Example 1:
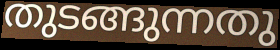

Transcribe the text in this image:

തുടങ്ങുന്നതു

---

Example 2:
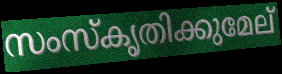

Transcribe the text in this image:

സംസ്കൃതിക്കുമേല്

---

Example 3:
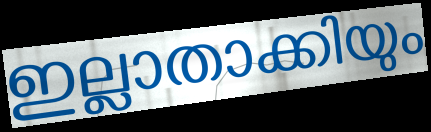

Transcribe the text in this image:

ഇല്ലാതാക്കിയും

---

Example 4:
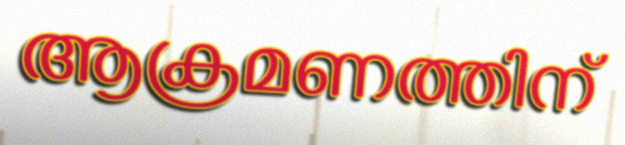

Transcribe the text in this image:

ആക്രമണത്തിന്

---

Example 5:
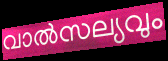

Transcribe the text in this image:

വാൽസല്യവും